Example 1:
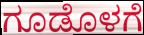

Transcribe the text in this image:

ಗೂಡೊಳಗೆ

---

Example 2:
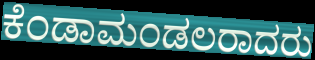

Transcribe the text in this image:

ಕೆಂಡಾಮಂಡಲರಾದರು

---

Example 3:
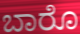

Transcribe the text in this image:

ಬಾರೊ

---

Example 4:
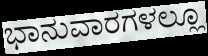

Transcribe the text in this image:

ಭಾನುವಾರಗಳಲ್ಲೂ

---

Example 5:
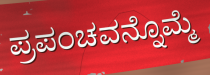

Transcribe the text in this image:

ಪ್ರಪಂಚವನ್ನೊಮ್ಮೆ